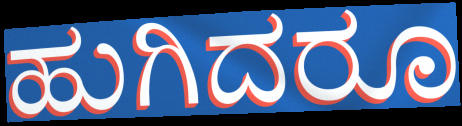
ಹುಗಿದರೂ